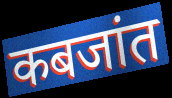
कबजांत